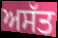
ਅਸੱਤ